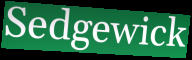
Sedgewick